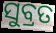
ସୁବ୍ରତ